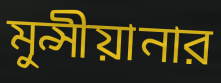
মুন্সীয়ানার